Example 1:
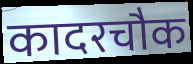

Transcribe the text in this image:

कादरचौक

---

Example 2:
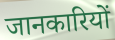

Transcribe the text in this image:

जानकारियों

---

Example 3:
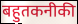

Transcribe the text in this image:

बहुतकनीकी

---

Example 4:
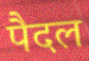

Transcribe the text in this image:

पैदल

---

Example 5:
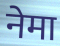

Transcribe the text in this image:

नेमा